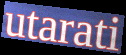
utarati